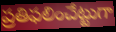
ప్రతిఫలించేట్టుగా